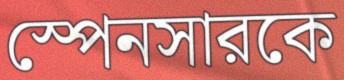
স্পেনসারকে